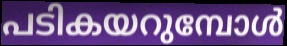
പടികയറുമ്പോൾ